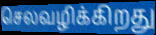
செலவழிக்கிறது